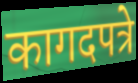
कागदपत्रे